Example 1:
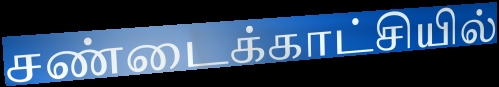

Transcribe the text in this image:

சண்டைக்காட்சியில்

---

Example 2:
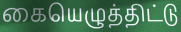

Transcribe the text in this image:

கையெழுத்திட்டு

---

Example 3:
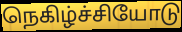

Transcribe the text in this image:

நெகிழ்ச்சியோடு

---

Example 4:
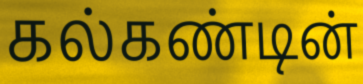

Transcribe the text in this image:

கல்கண்டின்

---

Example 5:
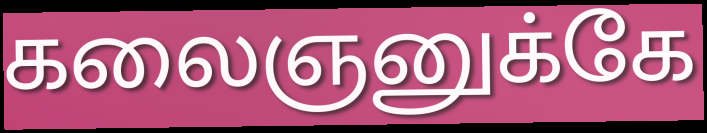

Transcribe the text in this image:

கலைஞனுக்கே